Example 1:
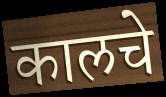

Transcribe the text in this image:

कालचे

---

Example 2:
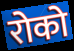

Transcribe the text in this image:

रोको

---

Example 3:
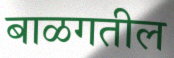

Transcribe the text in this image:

बाळगतील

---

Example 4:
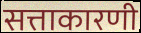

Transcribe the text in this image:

सत्ताकारणी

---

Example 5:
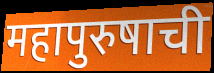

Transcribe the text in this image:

महापुरुषाची